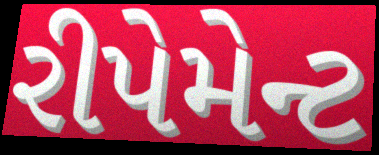
રીપેમેન્ટ